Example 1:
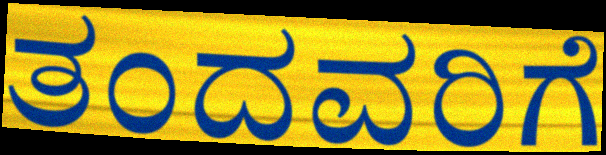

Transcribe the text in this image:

ತಂದವರಿಗೆ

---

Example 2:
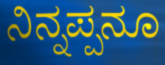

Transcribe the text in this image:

ನಿನ್ನಪ್ಪನೂ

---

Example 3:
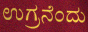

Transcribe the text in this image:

ಉಗ್ರನೆಂದು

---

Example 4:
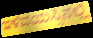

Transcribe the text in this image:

ಇಳಿವಯಸ್ಸಿನಲ್ಲಿ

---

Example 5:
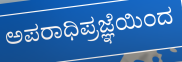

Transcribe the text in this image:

ಅಪರಾಧಿಪ್ರಜ್ಞೆಯಿಂದ